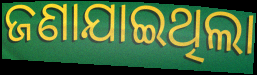
ଜଣାଯାଇଥିଲା